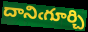
దానిఁగూర్చి